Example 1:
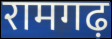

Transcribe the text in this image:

रामगढ़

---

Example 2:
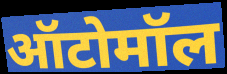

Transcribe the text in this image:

ऑटोमॉल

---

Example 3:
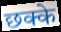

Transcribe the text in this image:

छक्के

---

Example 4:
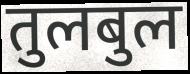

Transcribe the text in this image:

तुलबुल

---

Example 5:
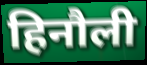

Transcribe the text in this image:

हिनौली